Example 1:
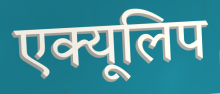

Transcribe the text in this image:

एक्यूलिप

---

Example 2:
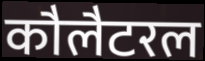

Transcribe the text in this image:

कौलैटरल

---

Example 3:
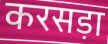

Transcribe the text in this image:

करसड़ा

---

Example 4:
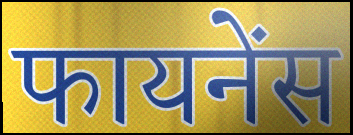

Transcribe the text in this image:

फायनेंस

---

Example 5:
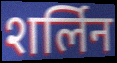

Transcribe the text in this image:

शर्लिन